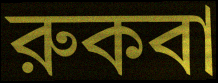
রুকবা